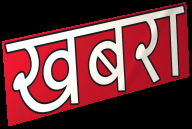
खबरा